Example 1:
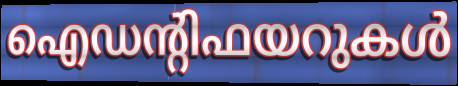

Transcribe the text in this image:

ഐഡന്റിഫയറുകൾ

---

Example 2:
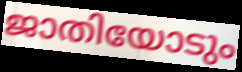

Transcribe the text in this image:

ജാതിയോടും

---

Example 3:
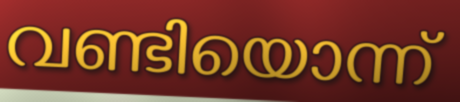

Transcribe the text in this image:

വണ്ടിയൊന്ന്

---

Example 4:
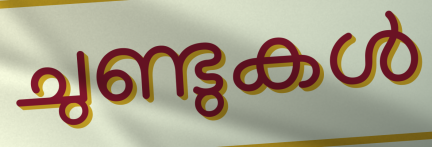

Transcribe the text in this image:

ചുണ്ടുകൾ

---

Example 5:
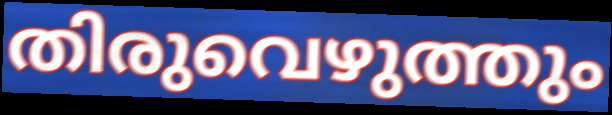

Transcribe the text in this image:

തിരുവെഴുത്തും